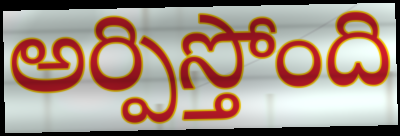
అర్పిస్తోంది